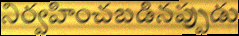
నిర్వహించబడినప్పుడు